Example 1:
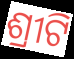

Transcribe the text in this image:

ଶ୍ରୀଟି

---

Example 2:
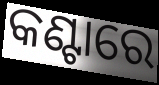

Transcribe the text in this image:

କଣ୍ଟାରେ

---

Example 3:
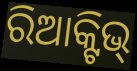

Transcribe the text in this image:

ରିଆକ୍ଟିଭ୍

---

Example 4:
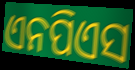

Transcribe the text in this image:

ଏନପିଏସ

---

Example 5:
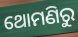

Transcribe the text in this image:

ଥୋମଣିରୁ